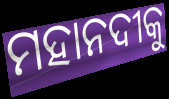
ମହାନଦୀକୁ